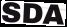
SDA